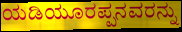
ಯಡಿಯೂರಪ್ಪನವರನ್ನು